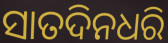
ସାତଦିନଧରି